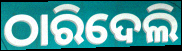
ଠାରିଦେଲି